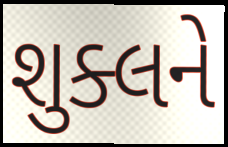
શુક્લને